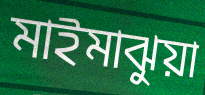
মাইমাঝুয়া